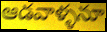
ఆడవాళ్ళనూ